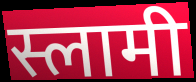
स्लामी